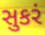
સુકરં